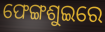
ଫେଙ୍ଗଶୁଇରେ